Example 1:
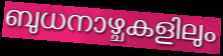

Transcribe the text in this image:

ബുധനാഴ്ചകളിലും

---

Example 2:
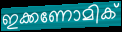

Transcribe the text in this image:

ഇക്കണോമിക്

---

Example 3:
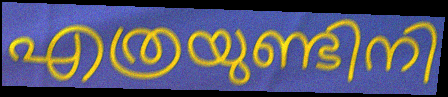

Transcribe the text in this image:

എത്രയുണ്ടിനി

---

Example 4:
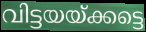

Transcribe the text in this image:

വിട്ടയയ്ക്കട്ടെ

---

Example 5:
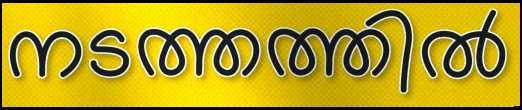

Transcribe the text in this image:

നടത്തത്തിൽ